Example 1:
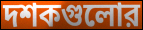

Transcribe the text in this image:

দশকগুলোর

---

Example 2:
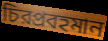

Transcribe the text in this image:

চিরপ্রবহমান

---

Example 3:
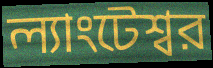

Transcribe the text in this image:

ল্যাংটেশ্বর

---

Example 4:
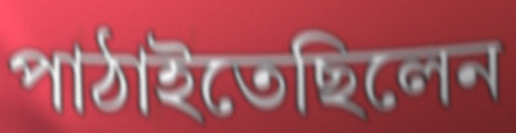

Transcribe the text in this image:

পাঠাইতেছিলেন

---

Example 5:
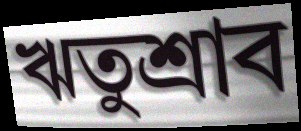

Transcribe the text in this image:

ঋতুশ্রাব